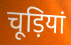
चूड़ियां